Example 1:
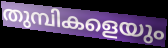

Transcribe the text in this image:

തുമ്പികളെയും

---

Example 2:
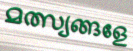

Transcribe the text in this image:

മത്സ്യങ്ങളേ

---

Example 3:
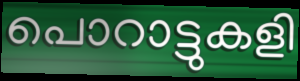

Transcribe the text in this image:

പൊറാട്ടുകളി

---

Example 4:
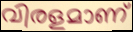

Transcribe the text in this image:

വിരളമാണ്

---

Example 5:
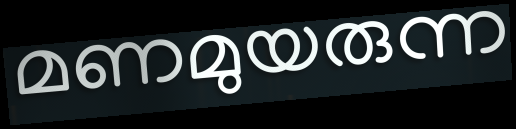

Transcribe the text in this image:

മണമുയരുന്ന